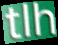
tlh